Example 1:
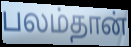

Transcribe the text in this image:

பலம்தான்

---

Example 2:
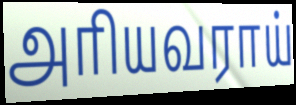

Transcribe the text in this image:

அரியவராய்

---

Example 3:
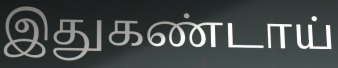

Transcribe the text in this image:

இதுகண்டாய்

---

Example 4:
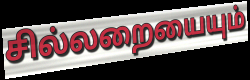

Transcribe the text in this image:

சில்லறையையும்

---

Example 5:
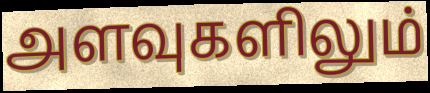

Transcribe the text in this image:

அளவுகளிலும்